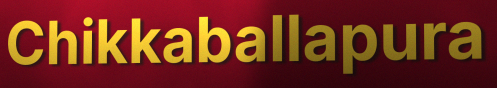
Chikkaballapura